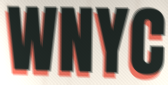
WNYC